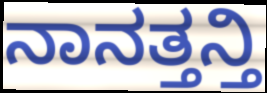
ನಾನತ್ತನ್ತಿ